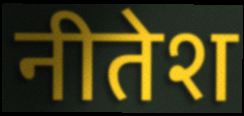
नीतेश